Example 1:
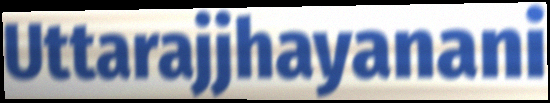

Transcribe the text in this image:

Uttarajjhayanani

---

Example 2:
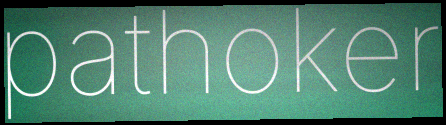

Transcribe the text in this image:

pathoker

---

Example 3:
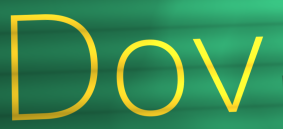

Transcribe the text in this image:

Dov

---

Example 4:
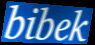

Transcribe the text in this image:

bibek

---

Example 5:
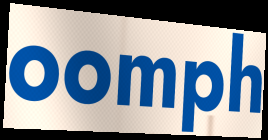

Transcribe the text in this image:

oomph